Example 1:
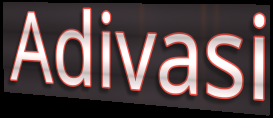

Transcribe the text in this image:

Adivasi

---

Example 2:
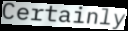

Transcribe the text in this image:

Certainly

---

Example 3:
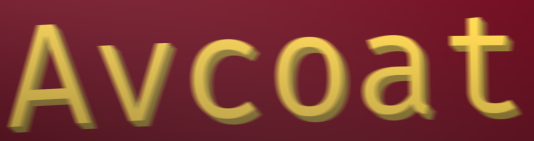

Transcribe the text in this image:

Avcoat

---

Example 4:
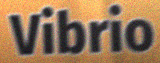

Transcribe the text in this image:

Vibrio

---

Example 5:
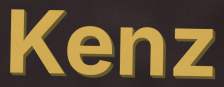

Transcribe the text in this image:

Kenz